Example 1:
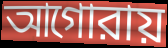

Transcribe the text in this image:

আগোরায়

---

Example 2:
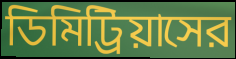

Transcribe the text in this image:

ডিমিট্রিয়াসের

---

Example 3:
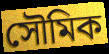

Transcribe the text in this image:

সৌমিক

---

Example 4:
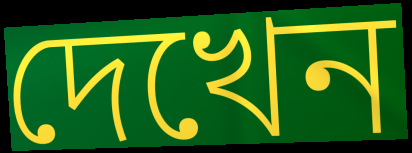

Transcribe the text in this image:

দেখেন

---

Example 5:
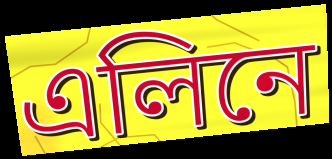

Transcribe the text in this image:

এলিনে